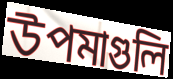
উপমাগুলি